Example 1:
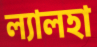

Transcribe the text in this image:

ল্যালহা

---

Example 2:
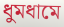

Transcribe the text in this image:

ধুমধামে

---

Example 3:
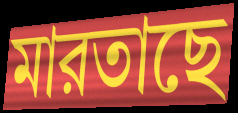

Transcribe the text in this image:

মারতাছে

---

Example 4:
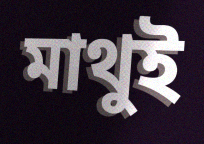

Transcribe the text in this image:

মাথুই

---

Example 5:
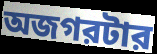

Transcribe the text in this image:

অজগরটার